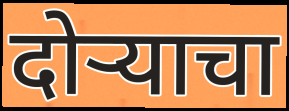
दोर्‍याचा